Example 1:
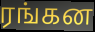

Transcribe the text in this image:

ரங்கன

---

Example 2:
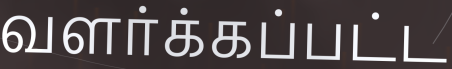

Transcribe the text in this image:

வளர்க்கப்பட்ட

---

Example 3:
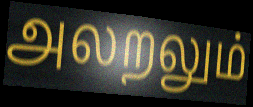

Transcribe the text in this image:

அலறலும்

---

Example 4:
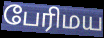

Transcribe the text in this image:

பேரிமய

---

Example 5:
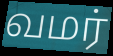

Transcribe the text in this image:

வமர்